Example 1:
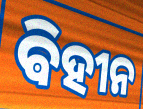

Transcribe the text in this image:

ଵିହୀନ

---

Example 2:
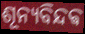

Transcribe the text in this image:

ଶୂନ୍ଯବିନ୍ଦଵ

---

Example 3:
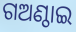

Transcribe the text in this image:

ଗଅଣ୍ଠାଇ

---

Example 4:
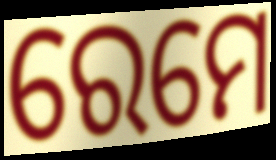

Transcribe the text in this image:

ରେମେ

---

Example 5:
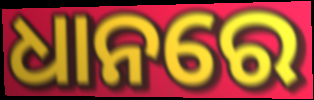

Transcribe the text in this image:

ଧାନରେ